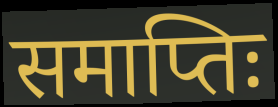
समाप्तिः